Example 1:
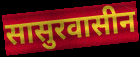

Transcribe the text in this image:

सासुरवासीन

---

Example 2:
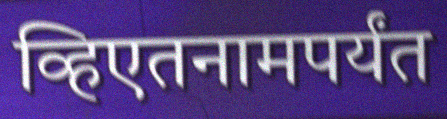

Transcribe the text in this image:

व्हिएतनामपर्यंत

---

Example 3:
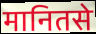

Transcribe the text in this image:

मानितसे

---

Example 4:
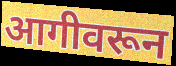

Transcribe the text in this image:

आगीवरून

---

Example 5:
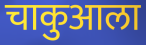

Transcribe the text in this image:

चाकुआला